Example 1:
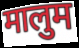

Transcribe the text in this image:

मालुम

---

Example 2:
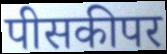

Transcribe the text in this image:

पीसकीपर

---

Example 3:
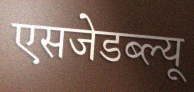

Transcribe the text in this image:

एसजेडब्ल्यू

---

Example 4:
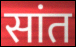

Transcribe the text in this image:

सांत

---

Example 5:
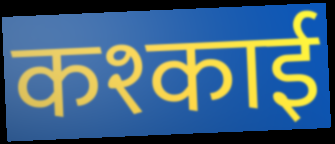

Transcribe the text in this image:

कश्काई